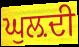
ਘੁਲ਼ਦੀ